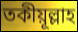
তকীয়ূল্লাহ